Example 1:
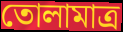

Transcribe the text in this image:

তোলামাত্র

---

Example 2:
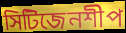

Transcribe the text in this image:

সিটিজেনশীপ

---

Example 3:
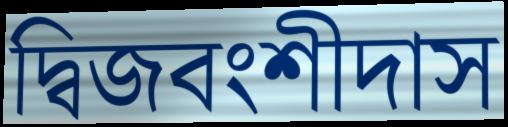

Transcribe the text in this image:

দ্বিজবংশীদাস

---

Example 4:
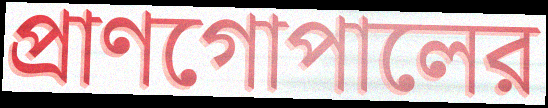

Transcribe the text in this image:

প্রাণগোপালের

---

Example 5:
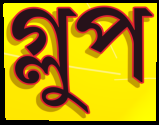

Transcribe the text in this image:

গ্লুপ